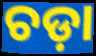
ଚଡ଼ା